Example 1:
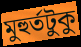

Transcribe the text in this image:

মুহুর্তটুকু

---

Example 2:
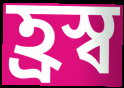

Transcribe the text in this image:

হ্রস্ব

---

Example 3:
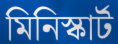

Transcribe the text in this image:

মিনিস্কার্ট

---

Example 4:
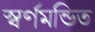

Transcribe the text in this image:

স্বর্ণমন্ডিত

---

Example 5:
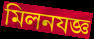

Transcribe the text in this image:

মিলনযজ্ঞ